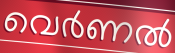
വെർണൽ